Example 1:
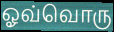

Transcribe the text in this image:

ஓவ்வொரு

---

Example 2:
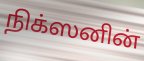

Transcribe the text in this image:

நிக்ஸனின்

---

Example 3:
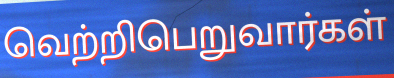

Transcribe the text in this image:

வெற்றிபெறுவார்கள்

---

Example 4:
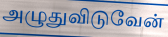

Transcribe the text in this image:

அழுதுவிடுவேன்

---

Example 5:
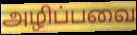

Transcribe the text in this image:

அழிப்பவை